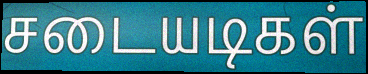
சடையடிகள்